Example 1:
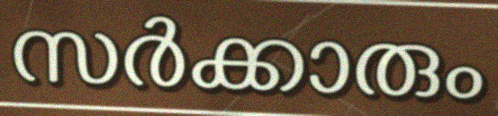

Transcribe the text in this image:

സർക്കാരും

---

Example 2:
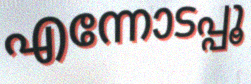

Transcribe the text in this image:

എന്നോടപ്പൂ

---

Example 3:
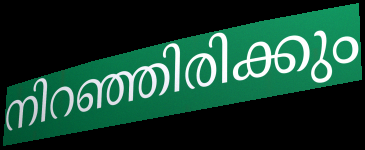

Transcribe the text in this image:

നിറഞ്ഞിരിക്കും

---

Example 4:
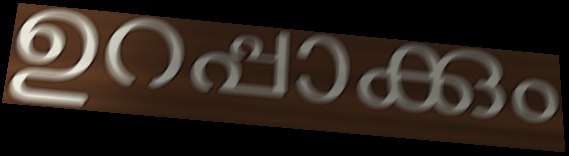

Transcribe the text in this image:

ഉറപ്പാക്കും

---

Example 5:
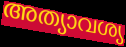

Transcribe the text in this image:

അത്യാവശ്യ